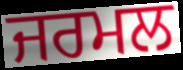
ਜਰਮਲ